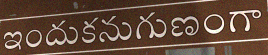
ఇందుకనుగుణంగా